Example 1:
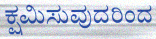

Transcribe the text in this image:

ಕ್ಷಮಿಸುವುದರಿಂದ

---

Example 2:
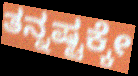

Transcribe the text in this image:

ತನ್ನಷ್ಟಕ್ಕೇ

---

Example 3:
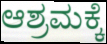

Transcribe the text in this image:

ಆಶ್ರಮಕ್ಕೆ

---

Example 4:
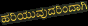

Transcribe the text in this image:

ಹರಿಯುವುದರಿಂದಾಗಿ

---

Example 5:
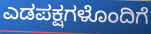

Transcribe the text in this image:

ಎಡಪಕ್ಷಗಳೊಂದಿಗೆ